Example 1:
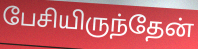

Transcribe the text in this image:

பேசியிருந்தேன்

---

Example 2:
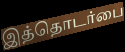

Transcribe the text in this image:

இத்தொடர்பை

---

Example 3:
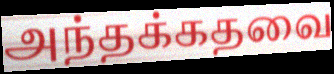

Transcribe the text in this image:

அந்தக்கதவை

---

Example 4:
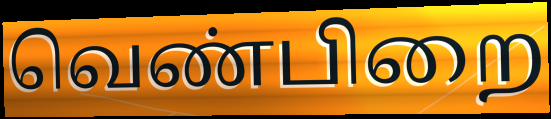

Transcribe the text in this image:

வெண்பிறை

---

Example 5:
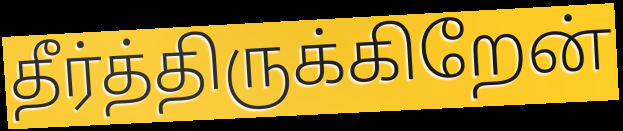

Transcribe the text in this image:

தீர்த்திருக்கிறேன்